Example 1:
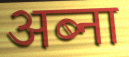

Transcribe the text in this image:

अब्ना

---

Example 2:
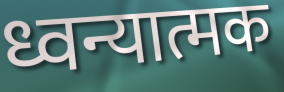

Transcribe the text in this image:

ध्वन्यात्मक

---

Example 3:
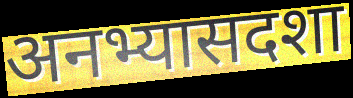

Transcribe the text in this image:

अनभ्यासदशा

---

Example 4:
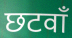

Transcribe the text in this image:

छटवाँ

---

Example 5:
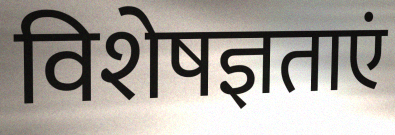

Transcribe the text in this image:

विशेषज्ञताएं